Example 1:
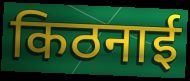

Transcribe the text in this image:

किठनाई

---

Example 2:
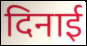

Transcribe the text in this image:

दिनाई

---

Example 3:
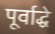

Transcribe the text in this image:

पूर्वाद्धे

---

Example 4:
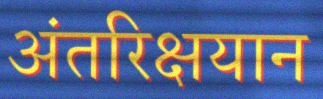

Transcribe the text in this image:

अंतरिक्षयान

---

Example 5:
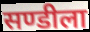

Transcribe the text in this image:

सण्डीला